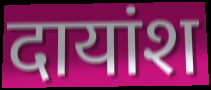
दायांश